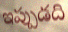
ఇప్పుడది